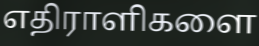
எதிராளிகளை